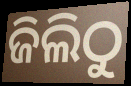
ଜିଲିଠୁ